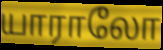
யாராலோ